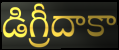
డిగ్రీదాకా